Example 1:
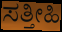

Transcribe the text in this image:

ಸತ್ತೀಹಿ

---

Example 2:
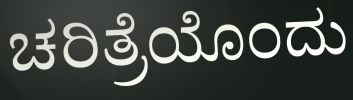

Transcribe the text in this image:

ಚರಿತ್ರೆಯೊಂದು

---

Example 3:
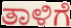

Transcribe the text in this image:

ತಾಳಿಗೆ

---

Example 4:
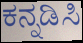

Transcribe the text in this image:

ಕನ್ನಡಿಸಿ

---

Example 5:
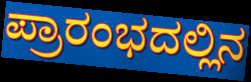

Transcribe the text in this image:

ಪ್ರಾರಂಭದಲ್ಲಿನ